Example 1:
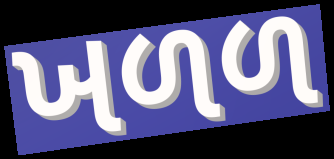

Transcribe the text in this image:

ખળળ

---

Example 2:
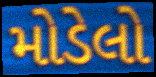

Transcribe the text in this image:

મોડેલો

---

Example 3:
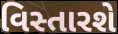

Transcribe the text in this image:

વિસ્તારશે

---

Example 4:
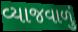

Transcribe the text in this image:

વ્યાજવાળું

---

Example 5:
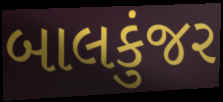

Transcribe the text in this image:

બાલકુંજર